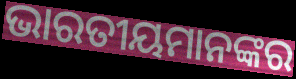
ଭାରତୀୟମାନଙ୍କର